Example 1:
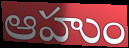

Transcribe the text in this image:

ఆహుం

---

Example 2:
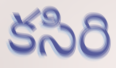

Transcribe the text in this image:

కసిరి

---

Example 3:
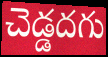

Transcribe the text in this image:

చెడ్డదగు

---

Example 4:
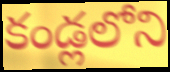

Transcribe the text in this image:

కండ్లలోని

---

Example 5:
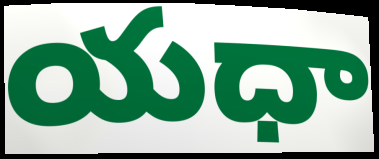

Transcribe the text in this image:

యధా